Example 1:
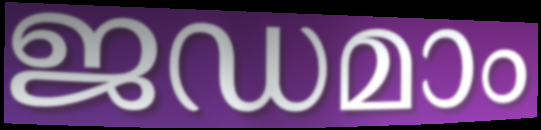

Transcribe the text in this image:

ജഡമാം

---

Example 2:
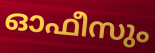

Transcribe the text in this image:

ഓഫീസും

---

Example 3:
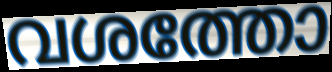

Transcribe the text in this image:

വശത്തോ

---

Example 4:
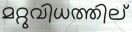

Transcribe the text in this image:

മറ്റുവിധത്തില്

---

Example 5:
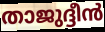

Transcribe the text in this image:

താജുദ്ദീൻ